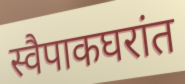
स्वैपाकघरांत